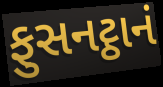
ફુસનટ્ઠાનં